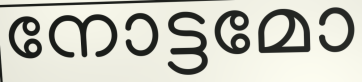
നോട്ടമോ